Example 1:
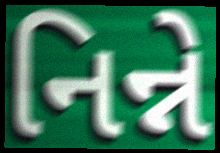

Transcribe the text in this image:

નિન્ને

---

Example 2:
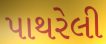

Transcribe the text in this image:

પાથરેલી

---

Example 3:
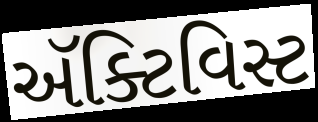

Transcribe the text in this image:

ઍક્ટિવિસ્ટ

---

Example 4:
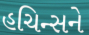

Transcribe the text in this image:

હચિન્સને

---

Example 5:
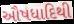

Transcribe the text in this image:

ઔષધાદિથી